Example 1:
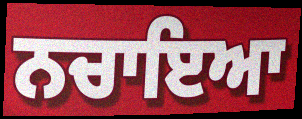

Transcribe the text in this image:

ਨਚਾਇਆ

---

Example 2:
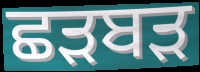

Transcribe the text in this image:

ਛੜਬੜ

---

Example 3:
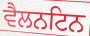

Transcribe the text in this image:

ਵੈਲਨਟਿਨ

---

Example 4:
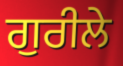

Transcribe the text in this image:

ਗੁਰੀਲੇ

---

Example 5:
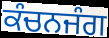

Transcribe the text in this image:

ਕੰਚਨਜੰਗ